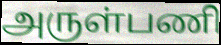
அருள்பணி